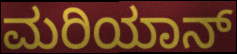
ಮರಿಯಾನ್